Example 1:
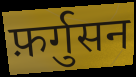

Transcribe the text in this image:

फ़र्गुसन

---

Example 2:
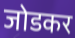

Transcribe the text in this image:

जोडकर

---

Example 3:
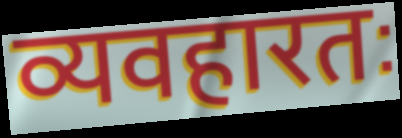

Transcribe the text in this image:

व्यवहारतः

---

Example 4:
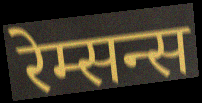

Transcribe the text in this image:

रेम्सन्स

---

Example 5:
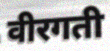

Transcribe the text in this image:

वीरगती